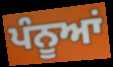
ਪੰਨੂਆਂ